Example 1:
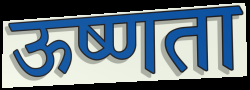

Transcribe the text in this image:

ऊष्णता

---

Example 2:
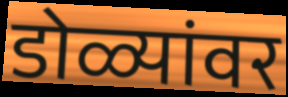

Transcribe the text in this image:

डोळ्यांवर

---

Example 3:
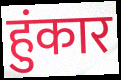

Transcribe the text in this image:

हुंकार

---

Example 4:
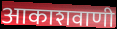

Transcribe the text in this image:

आकाशवाणी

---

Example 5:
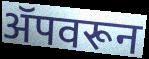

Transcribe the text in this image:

ॲपवरून